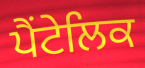
ਪੈਂਟੇਲਿਕ